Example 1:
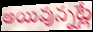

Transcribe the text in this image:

అయివున్నట్లే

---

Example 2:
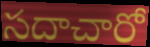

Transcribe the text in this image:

సదాచారో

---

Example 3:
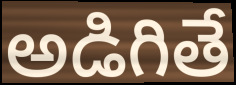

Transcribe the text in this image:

అడిగితే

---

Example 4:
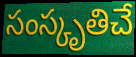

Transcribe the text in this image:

సంస్కృతిచే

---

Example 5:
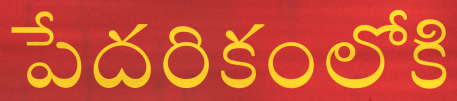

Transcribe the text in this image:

పేదరికంలోకి